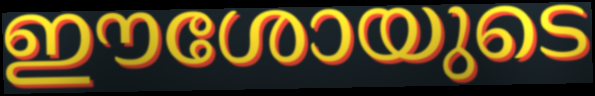
ഈശോയുടെ